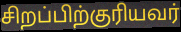
சிறப்பிற்குரியவர்